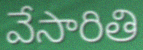
వేసారితి